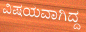
ವಿಷಯವಾಗಿದ್ದ